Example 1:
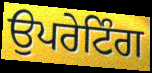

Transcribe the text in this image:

ਉਪਰੇਟਿੰਗ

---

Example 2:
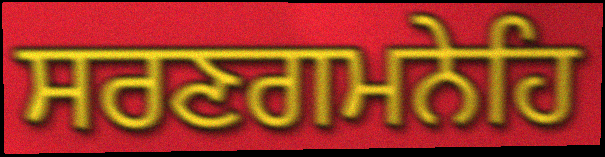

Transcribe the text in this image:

ਸਰਣਗਮਨੇਹਿ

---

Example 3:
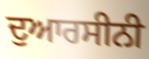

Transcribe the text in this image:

ਦੁਆਰਸੀਨੀ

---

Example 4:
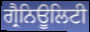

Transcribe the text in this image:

ਗ੍ਰੈਨਿਊਲਿਟੀ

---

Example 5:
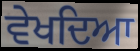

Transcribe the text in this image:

ਵੇਖਦਿਆ